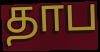
தாப